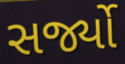
સર્જ્યો